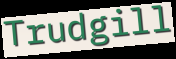
Trudgill